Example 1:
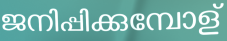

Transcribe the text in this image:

ജനിപ്പിക്കുമ്പോള്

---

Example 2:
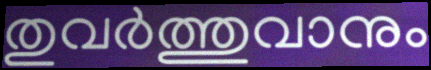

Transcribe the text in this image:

തുവർത്തുവാനും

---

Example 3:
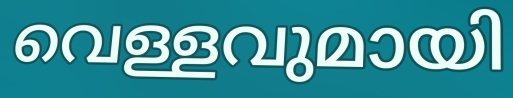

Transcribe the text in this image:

വെള്ളവുമായി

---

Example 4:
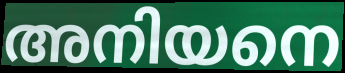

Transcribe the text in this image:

അനിയനെ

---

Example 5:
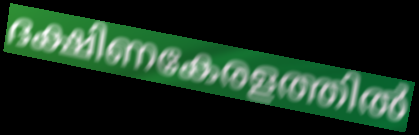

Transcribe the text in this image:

ദക്ഷിണകേരളത്തിൽ